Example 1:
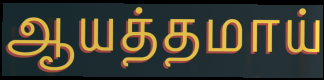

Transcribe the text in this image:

ஆயத்தமாய்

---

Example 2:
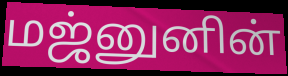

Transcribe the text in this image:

மஜ்னுனின்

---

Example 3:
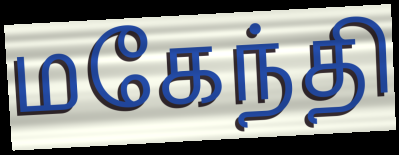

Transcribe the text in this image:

மகேந்தி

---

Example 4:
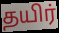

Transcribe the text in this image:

தயிர்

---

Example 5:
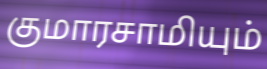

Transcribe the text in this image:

குமாரசாமியும்